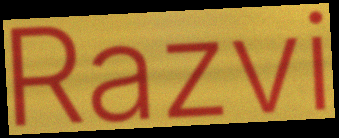
Razvi